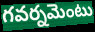
గవర్నమెంటు